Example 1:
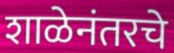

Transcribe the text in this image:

शाळेनंतरचे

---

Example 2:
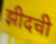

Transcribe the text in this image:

झीदची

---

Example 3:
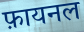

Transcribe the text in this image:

फ़ायनल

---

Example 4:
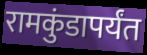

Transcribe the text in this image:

रामकुंडापर्यंत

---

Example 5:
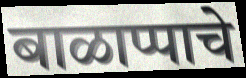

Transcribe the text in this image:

बाळाप्पाचे